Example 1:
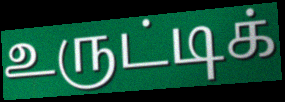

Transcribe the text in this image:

உருட்டிக்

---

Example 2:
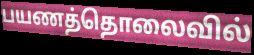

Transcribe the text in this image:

பயணத்தொலைவில்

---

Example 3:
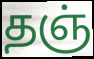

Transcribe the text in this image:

தஞ்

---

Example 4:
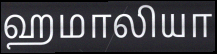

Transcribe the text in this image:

ஹமாலியா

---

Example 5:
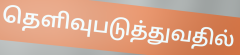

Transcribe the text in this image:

தெளிவுபடுத்துவதில்